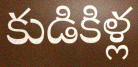
కుడికిళ్ల